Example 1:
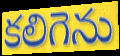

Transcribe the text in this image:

కలిగెను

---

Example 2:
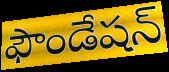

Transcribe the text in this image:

ఫౌండేషన్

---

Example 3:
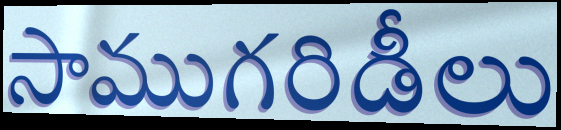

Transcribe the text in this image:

సాముగరిడీలు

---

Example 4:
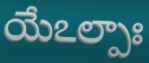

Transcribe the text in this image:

యేఽల్పాః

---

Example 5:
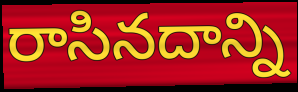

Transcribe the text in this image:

రాసినదాన్ని